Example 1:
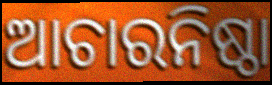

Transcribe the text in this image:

ଆଚାରନିଷ୍ଠା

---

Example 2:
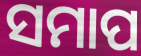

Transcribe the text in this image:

ସମାପ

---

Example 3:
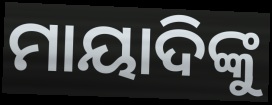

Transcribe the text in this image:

ମାୟାଦିଙ୍କୁ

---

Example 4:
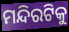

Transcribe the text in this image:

ମନ୍ଦିରଟିକୁ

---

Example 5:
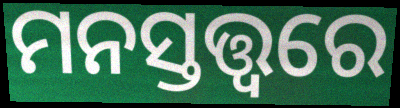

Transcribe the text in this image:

ମନସ୍ତତ୍ତ୍ଵରେ